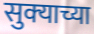
सुक्‍याच्या